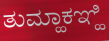
ತುಮ್ಹಾಕಞ್ಹಿ